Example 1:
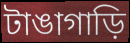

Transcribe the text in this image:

টাঙাগাড়ি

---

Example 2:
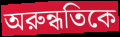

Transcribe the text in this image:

অরুন্ধতিকে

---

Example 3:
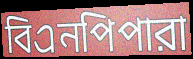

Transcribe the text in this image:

বিএনপিপারা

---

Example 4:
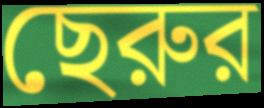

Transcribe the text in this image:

ছেরুর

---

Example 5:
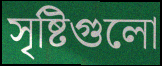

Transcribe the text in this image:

সৃষ্টিগুলো